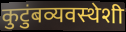
कुटुंबव्यवस्थेशी